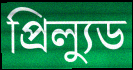
প্রিল্যুড